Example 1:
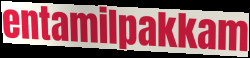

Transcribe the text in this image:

entamilpakkam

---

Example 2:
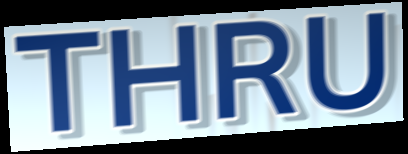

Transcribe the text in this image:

THRU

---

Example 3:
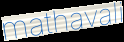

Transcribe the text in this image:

mathavali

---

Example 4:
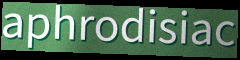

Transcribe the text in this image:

aphrodisiac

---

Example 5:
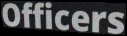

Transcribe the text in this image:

Officers